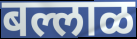
बल्लाळ